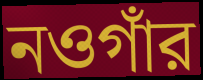
নওগাঁর